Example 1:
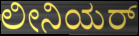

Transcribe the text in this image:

ಲೀನಿಯರ್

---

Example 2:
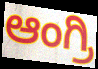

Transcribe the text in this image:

ಆಂಗ್ರಿ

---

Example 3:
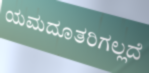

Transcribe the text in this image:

ಯಮದೂತರಿಗಲ್ಲದೆ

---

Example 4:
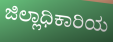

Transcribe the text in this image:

ಜಿಲ್ಲಾಧಿಕಾರಿಯ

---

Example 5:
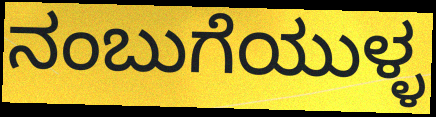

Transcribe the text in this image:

ನಂಬುಗೆಯುಳ್ಳ